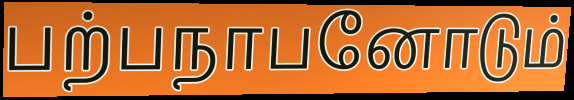
பற்பநாபனோடும்